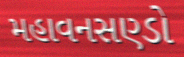
મહાવનસણ્ડો